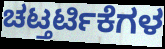
ಚಟ್ತರ್ಟಿಕೆಗಳ